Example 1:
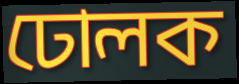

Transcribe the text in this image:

ঢোলক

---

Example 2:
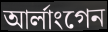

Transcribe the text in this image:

আৰ্লাংগেন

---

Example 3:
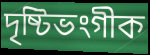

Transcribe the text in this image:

দৃষ্টিভংগীক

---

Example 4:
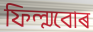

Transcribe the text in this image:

ফিল্মবোৰ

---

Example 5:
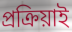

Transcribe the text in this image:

প্ৰক্ৰিয়াই